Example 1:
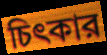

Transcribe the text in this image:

চিৎকার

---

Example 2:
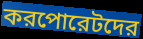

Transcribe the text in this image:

করপোরেটদের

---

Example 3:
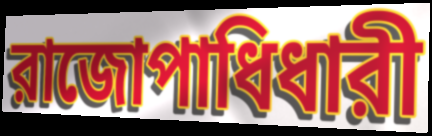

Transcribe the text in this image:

রাজোপাধিধারী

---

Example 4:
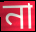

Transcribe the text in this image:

না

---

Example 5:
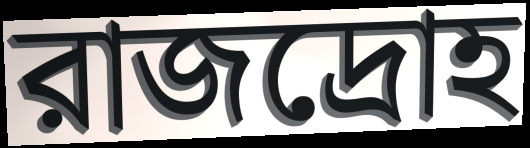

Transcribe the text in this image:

রাজদ্রোহ